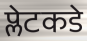
प्लेटकडे